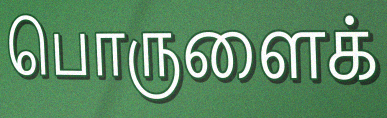
பொருளைக்